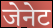
जेनेट